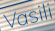
Vasili